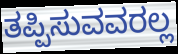
ತಪ್ಪಿಸುವವರಲ್ಲ